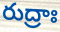
రుద్రాః